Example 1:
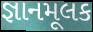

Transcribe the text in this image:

જ્ઞાનમૂલક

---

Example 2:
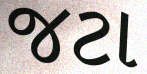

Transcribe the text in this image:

જટા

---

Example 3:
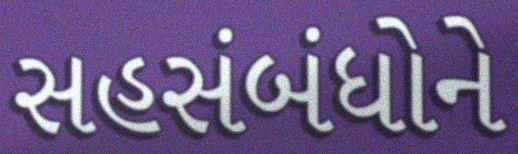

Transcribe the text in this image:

સહસંબંધોને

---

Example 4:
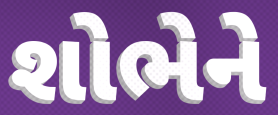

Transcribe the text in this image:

શોભેને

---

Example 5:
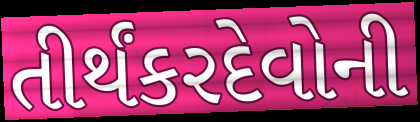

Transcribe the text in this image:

તીર્થંકરદેવોની